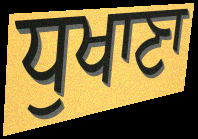
ਧੁਖਾਣਾ